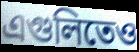
এগুলিতেও